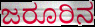
ಜರೂರಿನ